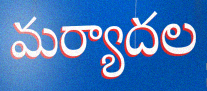
మర్యాదల